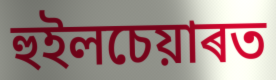
হুইলচেয়াৰত